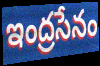
ఇంద్రసేనం